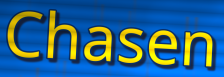
Chasen